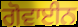
ਗੋਵਾਈਨ